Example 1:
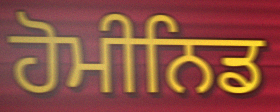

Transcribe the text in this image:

ਹੋਮੀਨਿਡ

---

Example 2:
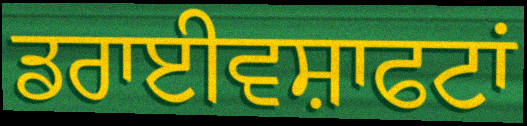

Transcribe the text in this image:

ਡਰਾਈਵਸ਼ਾਫਟਾਂ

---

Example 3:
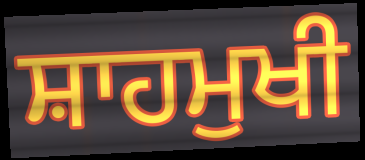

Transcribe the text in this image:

ਸ਼ਾਹਮੁਖੀ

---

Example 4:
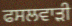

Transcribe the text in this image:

ਫਸਲਵਾੜੀ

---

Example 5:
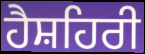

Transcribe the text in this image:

ਹੈਸ਼ਹਿਰੀ